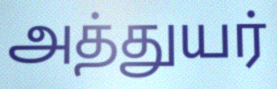
அத்துயர்